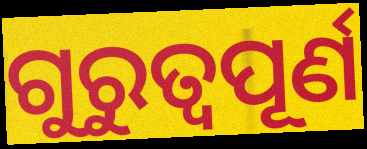
ଗୁରୁତ୍ୱପୂର୍ଣ